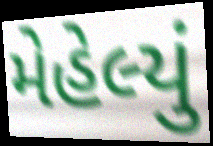
મેહેલ્યું